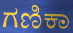
ಗಣಿಕಾ